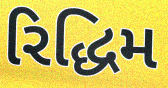
રિદ્ધિમ